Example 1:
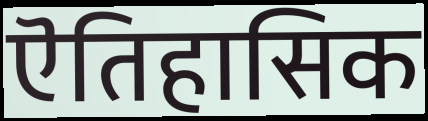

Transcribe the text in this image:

ऎतिहासिक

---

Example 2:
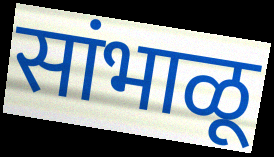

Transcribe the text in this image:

सांभाळू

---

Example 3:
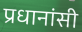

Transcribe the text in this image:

प्रधानांसी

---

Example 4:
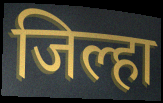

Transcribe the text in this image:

जिल्हा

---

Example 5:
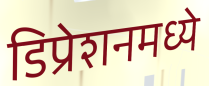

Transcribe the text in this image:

डिप्रेशनमध्ये